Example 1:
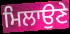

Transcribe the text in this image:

ਮਿਲਾਉਣੇ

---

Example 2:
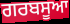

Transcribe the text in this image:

ਗਰਬਸੂਆ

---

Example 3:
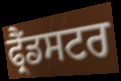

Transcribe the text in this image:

ਫ੍ਰੈਂਡਸਟਰ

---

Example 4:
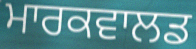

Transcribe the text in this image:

ਮਾਰਕਵਾਲਡ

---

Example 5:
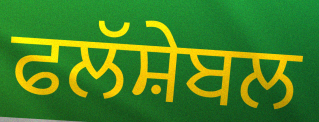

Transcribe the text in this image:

ਫਲੱਸ਼ੇਬਲ